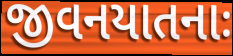
જીવનયાતનાઃ